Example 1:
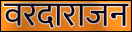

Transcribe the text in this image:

वरदाराजन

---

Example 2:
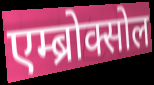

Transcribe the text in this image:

एम्ब्रोक्सोल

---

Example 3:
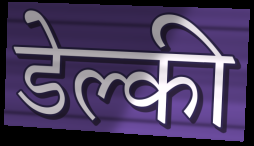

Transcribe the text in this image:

डेल्की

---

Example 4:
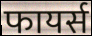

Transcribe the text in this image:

फायर्स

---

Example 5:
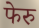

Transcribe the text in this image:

फेरु